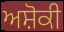
ਅਸ਼ੋਕੀ